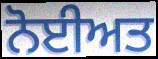
ਨੋਈਅਤ